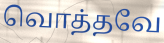
வொத்தவே